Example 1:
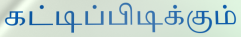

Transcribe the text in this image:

கட்டிப்பிடிக்கும்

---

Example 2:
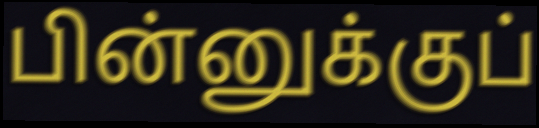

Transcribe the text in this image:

பின்னுக்குப்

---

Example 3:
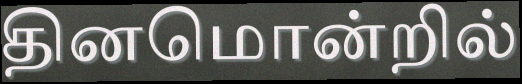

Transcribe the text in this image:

தினமொன்றில்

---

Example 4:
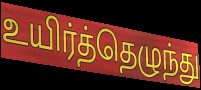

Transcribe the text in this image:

உயிர்த்தெழுந்து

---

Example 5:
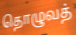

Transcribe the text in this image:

தொழுவத்